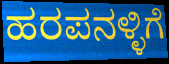
ಹರಪನಳ್ಳಿಗೆ